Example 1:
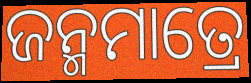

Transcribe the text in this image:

ଜନ୍ମମାତ୍ରେ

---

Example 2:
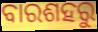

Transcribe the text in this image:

ବାରଶହରୁ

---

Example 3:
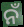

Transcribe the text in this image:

ନଁ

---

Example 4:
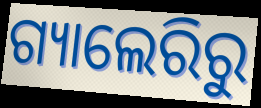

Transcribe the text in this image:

ଗ୍ୟାଲେରିରୁ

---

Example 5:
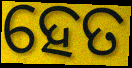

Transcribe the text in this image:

ହେତ